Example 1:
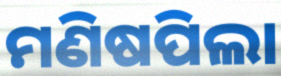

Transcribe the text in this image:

ମଣିଷପିଲା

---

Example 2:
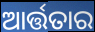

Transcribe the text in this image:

ଆର୍ତ୍ତତାର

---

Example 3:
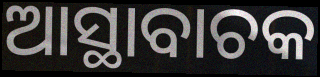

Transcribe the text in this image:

ଆସ୍ଥାବାଚକ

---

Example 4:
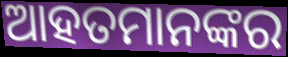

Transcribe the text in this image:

ଆହତମାନଙ୍କର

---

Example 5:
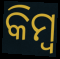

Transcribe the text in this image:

କିମ୍ବ